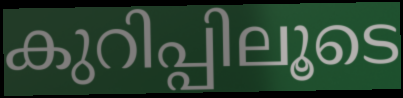
കുറിപ്പിലൂടെ